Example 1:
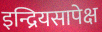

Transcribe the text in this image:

इन्द्रियसापेक्ष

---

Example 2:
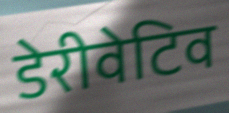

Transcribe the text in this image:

डेरीवेटिव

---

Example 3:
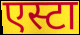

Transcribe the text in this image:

एस्टा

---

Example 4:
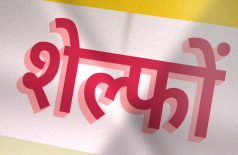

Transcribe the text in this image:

शेल्फों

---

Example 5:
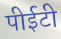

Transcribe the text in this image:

पीईटी